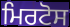
ਮਿਰਟੋਸ